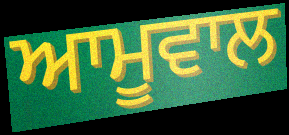
ਆਮੂਵਾਲ